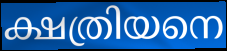
ക്ഷത്രിയനെ